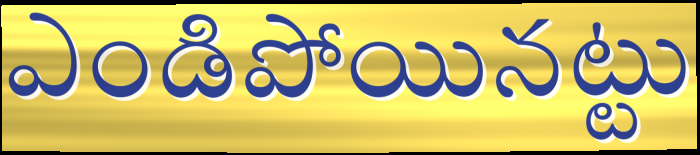
ఎండిపోయినట్టు